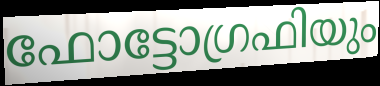
ഫോട്ടോഗ്രഫിയും